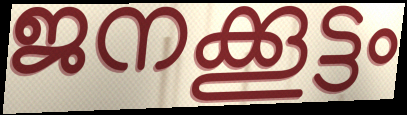
ജനക്കൂട്ടം